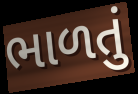
ભાળતું